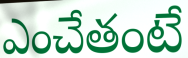
ఎంచేతంటే